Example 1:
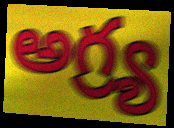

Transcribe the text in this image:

అగ్ర్య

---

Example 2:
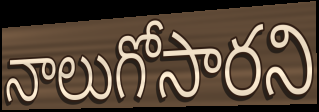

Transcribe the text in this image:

నాలుగోసారని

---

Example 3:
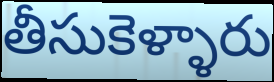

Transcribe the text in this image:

తీసుకెళ్ళారు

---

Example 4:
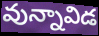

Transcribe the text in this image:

వున్నావిడ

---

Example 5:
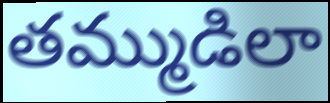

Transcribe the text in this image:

తమ్ముడిలా